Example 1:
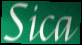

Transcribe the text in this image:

Sica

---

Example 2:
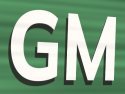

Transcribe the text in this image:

GM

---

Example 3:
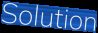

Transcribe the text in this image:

Solution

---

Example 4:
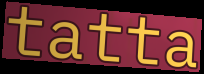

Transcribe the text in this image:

tatta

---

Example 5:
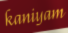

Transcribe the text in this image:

kaniyam